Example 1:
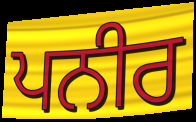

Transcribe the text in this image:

ਪਨੀਰ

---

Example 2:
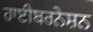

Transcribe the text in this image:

ਹਾਈਬਰਨੇਸ਼ਨ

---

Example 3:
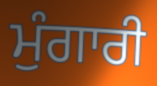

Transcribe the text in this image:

ਮੁੰਗਾਰੀ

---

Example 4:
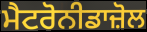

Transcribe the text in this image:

ਮੈਟਰੋਨੀਡਾਜ਼ੋਲ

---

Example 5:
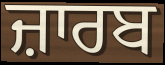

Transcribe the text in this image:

ਜ਼ਾਰਬ